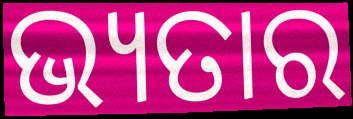
ଭ୍ୟତାର